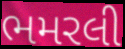
ભમરલી